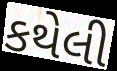
કથેલી